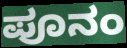
ಪೂನಂ